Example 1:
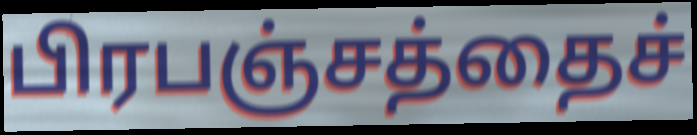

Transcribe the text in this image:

பிரபஞ்சத்தைச்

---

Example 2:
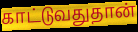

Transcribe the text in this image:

காட்டுவதுதான்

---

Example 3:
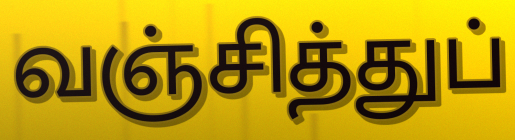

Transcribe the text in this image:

வஞ்சித்துப்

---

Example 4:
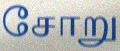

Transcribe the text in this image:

சோறு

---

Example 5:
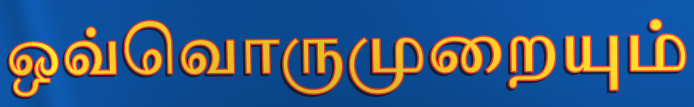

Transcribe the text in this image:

ஒவ்வொருமுறையும்